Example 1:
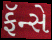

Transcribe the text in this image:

ફૅન્સે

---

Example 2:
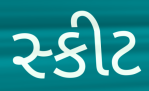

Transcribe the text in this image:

સ્કીટ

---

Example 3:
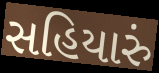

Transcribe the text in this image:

સહિયારું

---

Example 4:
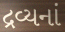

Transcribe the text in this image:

દ્રવ્યનાં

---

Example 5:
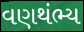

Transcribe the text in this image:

વણથંભ્ય